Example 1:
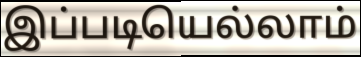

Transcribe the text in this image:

இப்படியெல்லாம்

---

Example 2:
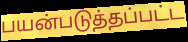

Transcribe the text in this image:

பயன்படுத்தப்பட்ட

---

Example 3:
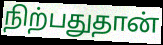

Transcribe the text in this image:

நிற்பதுதான்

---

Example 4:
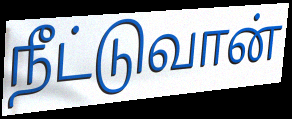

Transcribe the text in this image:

நீட்டுவான்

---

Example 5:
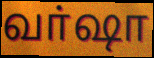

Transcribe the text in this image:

வர்ஷா